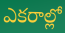
ఎకరాల్లో